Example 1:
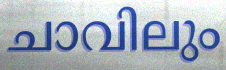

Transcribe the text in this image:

ചാവിലും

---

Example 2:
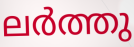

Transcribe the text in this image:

ലർത്തു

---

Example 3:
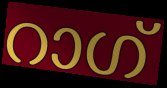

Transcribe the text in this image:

റാഗ്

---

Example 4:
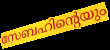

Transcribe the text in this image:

സേബഹിന്റെയും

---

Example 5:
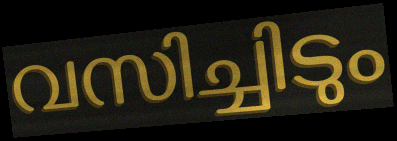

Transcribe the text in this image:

വസിച്ചിടും